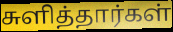
சுளித்தார்கள்